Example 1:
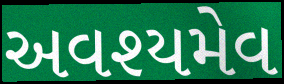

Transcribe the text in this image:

અવશ્યમેવ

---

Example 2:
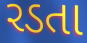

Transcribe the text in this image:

રડતા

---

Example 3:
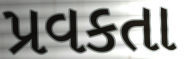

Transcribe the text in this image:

પ્રવકતા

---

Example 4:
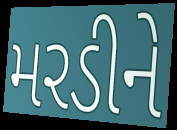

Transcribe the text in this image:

મરડીને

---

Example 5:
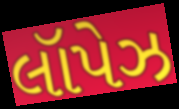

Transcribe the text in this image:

લૉપેઝ